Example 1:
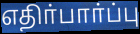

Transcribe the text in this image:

எதிர்பார்ப்பு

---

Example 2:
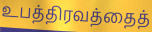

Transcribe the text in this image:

உபத்திரவத்தைத்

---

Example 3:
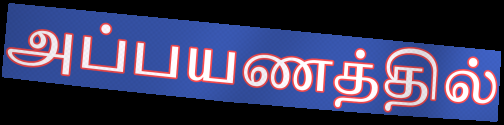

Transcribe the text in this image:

அப்பயணத்தில்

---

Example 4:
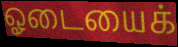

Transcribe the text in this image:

ஓடையைக்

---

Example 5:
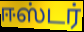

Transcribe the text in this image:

ஈஸ்டர்